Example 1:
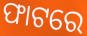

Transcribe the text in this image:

ଫାଟରେ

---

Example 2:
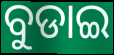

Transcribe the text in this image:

ବୁଡାଇ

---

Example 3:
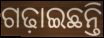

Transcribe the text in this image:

ଗଢ଼ାଇଛନ୍ତି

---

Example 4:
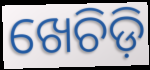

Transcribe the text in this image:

ଖେଚିଡ଼ି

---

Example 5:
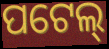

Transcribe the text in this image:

ପଟେଲ୍